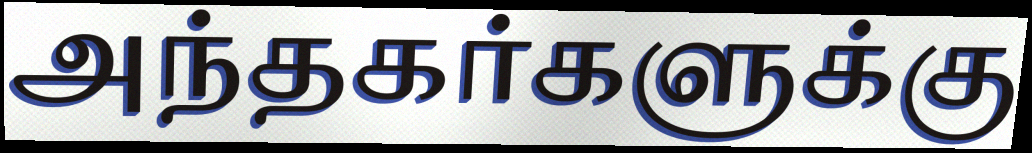
அந்தகர்களுக்கு